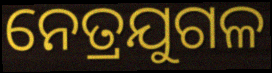
ନେତ୍ରଯୁଗଳ